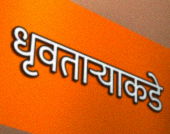
धृवतार्‍याकडे